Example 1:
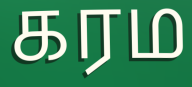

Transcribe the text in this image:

கரம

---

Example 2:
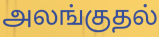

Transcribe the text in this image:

அலங்குதல்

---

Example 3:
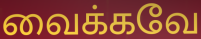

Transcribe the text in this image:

வைக்கவே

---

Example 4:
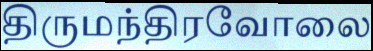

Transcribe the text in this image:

திருமந்திரவோலை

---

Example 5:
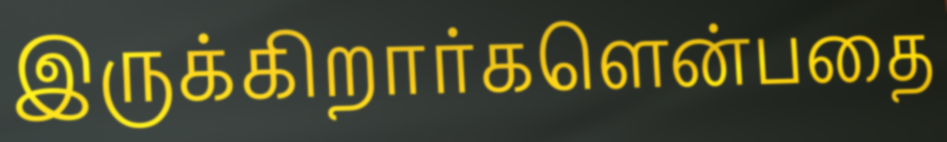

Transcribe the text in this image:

இருக்கிறார்களென்பதை